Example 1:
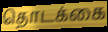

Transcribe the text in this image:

தொடக்கை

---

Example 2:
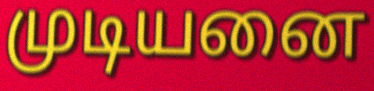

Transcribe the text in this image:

முடியனை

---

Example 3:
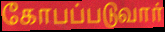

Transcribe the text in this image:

கோபப்படுவார்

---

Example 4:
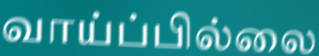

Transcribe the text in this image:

வாய்ப்பில்லை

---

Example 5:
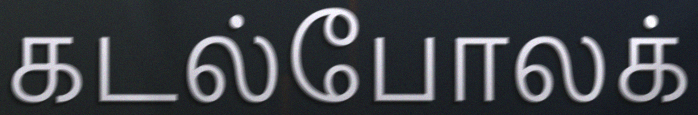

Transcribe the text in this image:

கடல்போலக்